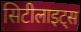
सिटीलाइट्स